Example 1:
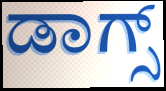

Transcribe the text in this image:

ಡಾಗ್ಸ್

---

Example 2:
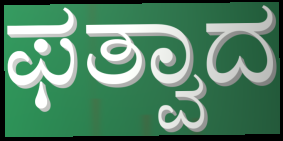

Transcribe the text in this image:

ಫತ್ವಾದ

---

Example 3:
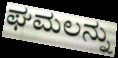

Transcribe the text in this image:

ಘಮಲನ್ನು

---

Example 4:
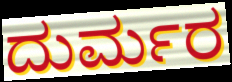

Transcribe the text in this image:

ದುರ್ಮರ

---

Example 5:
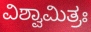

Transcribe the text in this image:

ವಿಶ್ವಾಮಿತ್ರಃ